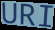
URI